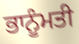
ਭਾਨੂੰਮਤੀ